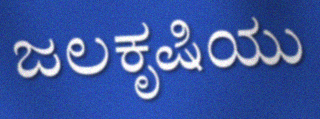
ಜಲಕೃಷಿಯು